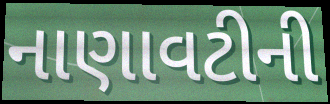
નાણાવટીની